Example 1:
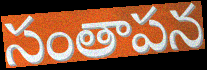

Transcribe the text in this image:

సంతాపన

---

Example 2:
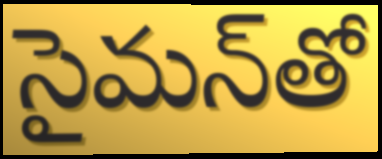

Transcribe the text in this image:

సైమన్‌తో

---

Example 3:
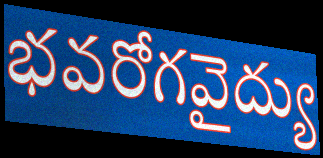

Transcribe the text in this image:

భవరోగవైద్యు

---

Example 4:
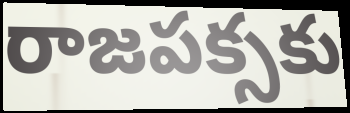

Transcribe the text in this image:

రాజపక్సకు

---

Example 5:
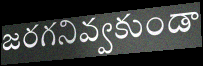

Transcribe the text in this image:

జరగనివ్వకుండా